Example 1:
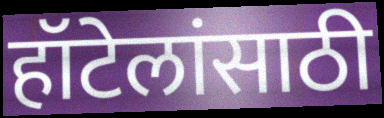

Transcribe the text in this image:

हॉटेलांसाठी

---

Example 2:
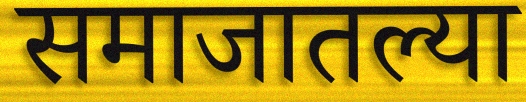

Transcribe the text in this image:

समाजातल्‍या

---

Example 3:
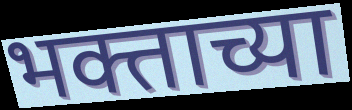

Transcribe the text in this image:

भक्ताच्या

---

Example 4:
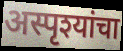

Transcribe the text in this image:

अस्पृश्यांचा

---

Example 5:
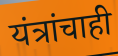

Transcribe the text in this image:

यंत्रांचाही